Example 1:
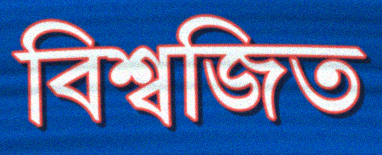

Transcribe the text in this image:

বিশ্বজিত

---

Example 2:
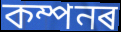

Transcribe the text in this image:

কম্পনৰ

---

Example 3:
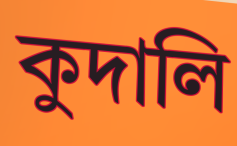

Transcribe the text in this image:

কুদালি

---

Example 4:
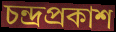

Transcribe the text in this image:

চন্দ্ৰপ্ৰকাশ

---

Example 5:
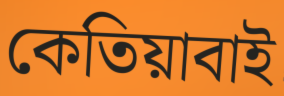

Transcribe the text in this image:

কেতিয়াবাই